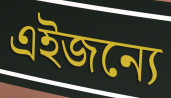
এইজন্যে